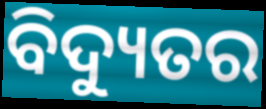
ବିଦ୍ୟୁତର